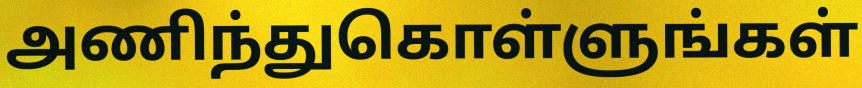
அணிந்துகொள்ளுங்கள்